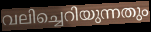
വലിച്ചെറിയുന്നതും